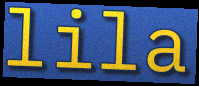
lila